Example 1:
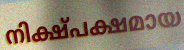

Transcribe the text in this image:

നിക്ഷ്പക്ഷമായ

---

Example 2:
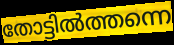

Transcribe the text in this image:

തോട്ടിൽത്തന്നെ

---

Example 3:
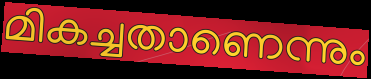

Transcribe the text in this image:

മികച്ചതാണെന്നും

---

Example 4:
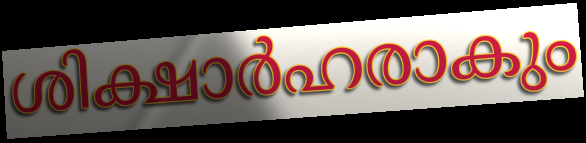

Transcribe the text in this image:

ശിക്ഷാർഹരാകും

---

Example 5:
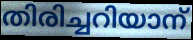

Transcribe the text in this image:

തിരിച്ചറിയാന്